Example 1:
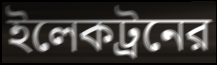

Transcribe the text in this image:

ইলেকট্রনের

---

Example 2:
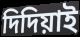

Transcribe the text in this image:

দিদিয়াই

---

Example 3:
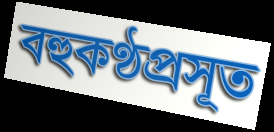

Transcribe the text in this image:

বহুকণ্ঠপ্রসূত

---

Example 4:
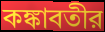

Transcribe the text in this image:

কঙ্কাবতীর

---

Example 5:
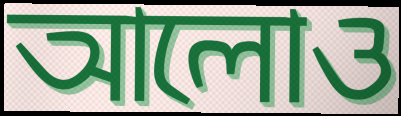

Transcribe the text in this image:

আলোও